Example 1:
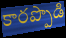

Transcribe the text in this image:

కారప్పొడి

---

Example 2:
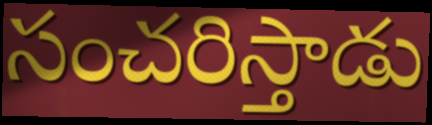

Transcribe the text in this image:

సంచరిస్తాడు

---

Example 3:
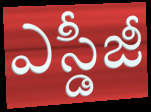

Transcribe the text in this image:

ఎస్డీజీ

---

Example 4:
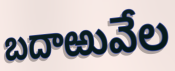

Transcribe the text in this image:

బదాఱువేల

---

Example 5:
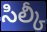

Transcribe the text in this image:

సిల్కీ